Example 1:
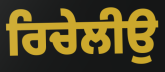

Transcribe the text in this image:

ਰਿਚੇਲੀਉ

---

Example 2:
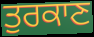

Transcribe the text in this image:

ਤੁਰਕਾਣ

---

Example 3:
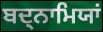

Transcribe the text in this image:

ਬਦ੍ਨਾਮਿਯਾਂ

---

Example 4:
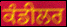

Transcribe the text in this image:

ਕੰਡੀਲਰ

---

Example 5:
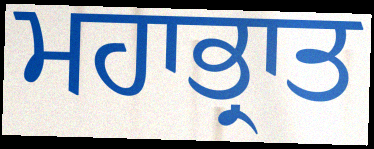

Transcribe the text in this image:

ਮਹਾਭ੍ਰਾਤ